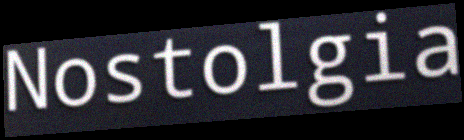
Nostolgia